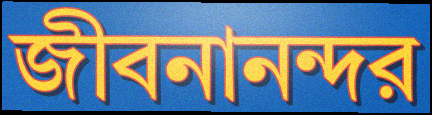
জীবনানন্দর